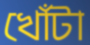
খোঁটা